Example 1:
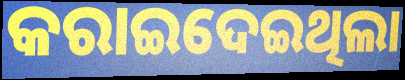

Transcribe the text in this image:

କରାଇଦେଇଥିଲା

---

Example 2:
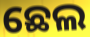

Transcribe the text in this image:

ଛେଲ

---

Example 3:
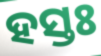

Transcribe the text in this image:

ହସ୍ତଃ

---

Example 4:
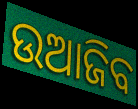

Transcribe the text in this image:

ଉଆଜିବ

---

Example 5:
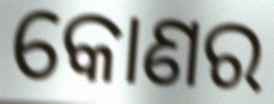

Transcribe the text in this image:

କୋଣର